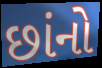
છાંનો